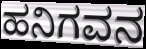
ಹನಿಗವನ